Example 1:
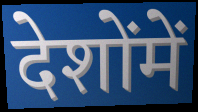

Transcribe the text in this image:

देशोंमें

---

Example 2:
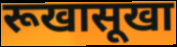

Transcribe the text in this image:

रूखासूखा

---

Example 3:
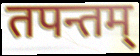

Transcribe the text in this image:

तपन्तम्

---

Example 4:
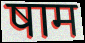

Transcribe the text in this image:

षाम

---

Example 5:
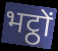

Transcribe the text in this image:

भट्ठों